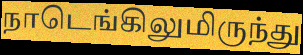
நாடெங்கிலுமிருந்து